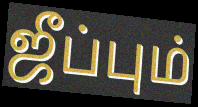
ஜீப்பும்